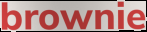
brownie